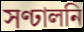
সণ্ঢালনি